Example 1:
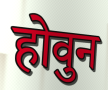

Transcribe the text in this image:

होवुन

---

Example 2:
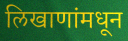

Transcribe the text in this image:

लिखाणांमधून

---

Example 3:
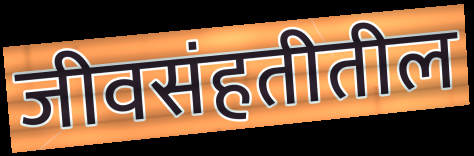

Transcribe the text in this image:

जीवसंहतीतील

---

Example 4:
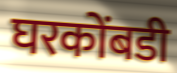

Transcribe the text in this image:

घरकोंबडी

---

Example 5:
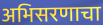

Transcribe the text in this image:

अभिसरणाचा